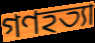
গণহত্যা